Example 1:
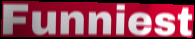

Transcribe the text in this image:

Funniest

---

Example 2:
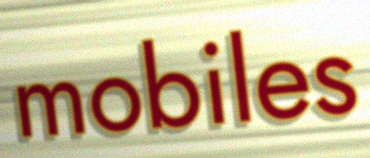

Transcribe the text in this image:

mobiles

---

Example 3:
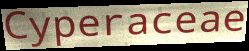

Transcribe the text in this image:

Cyperaceae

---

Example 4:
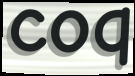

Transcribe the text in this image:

coq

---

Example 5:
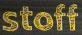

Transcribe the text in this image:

stoff